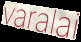
varalai